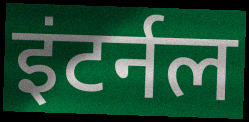
इंटर्नल